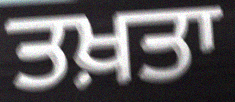
ਤਖ਼ਤਾ